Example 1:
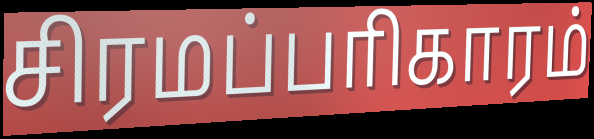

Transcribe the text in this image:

சிரமப்பரிகாரம்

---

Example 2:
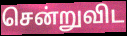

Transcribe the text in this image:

சென்றுவிட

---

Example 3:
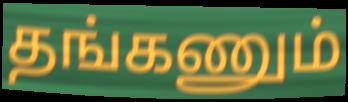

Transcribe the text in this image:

தங்கணும்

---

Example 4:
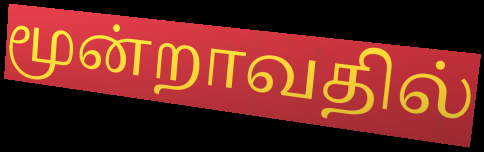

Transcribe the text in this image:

மூன்றாவதில்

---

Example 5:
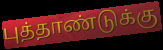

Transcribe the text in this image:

புத்தாண்டுக்கு